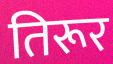
तिरूर